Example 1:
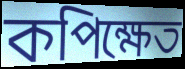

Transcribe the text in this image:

কপিক্ষেত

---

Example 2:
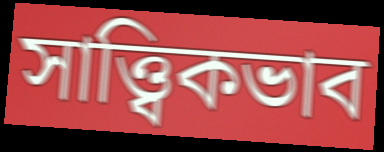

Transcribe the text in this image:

সাত্ত্বিকভাব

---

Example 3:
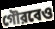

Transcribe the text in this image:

গৌরবেও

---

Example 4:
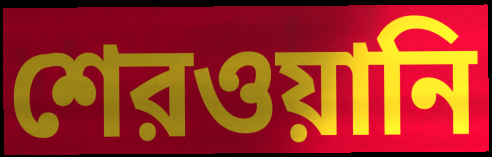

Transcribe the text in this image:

শেরওয়ানি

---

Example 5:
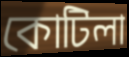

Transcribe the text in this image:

কোটিলা